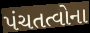
પંચતત્વોના